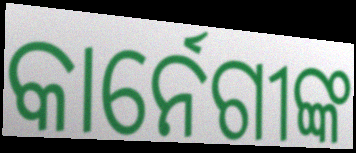
କାର୍ନେଗୀଙ୍କ